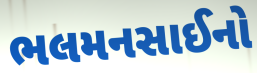
ભલમનસાઈનો